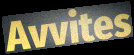
Avvites